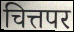
चित्तपर